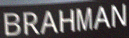
BRAHMAN